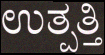
ಉತ್ಪತ್ತಿ